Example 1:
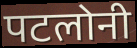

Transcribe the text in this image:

पटलोनी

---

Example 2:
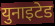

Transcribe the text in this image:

युनाइटेड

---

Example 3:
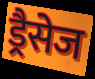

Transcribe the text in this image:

ड्रैसेज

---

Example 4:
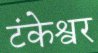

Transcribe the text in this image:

टंकेश्वर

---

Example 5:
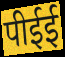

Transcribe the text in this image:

पीईई